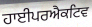
ਹਾਈਪਰਐਕਟਿਵ